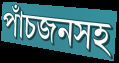
পাঁচজনসহ